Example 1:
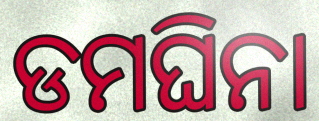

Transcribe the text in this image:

ଡମଘିନା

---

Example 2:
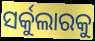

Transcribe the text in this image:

ସର୍କୁଲାରକୁ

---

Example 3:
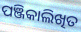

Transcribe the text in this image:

ପଞ୍ଜିକାଲିଖିତ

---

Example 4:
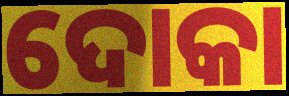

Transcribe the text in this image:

ଦୋକା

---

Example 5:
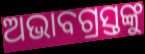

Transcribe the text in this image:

ଅଭାବଗ୍ରସ୍ତଙ୍କୁ